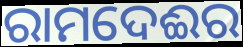
ରାମଦେଈର